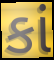
કાં